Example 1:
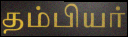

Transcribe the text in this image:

தம்பியர்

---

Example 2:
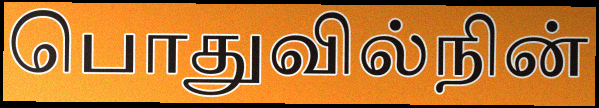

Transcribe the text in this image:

பொதுவில்நின்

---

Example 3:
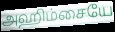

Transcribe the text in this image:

அஹிம்சையே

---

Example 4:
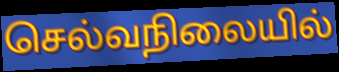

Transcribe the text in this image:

செல்வநிலையில்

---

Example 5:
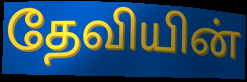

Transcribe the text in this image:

தேவியின்